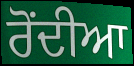
ਰੋਂਦੀਆ